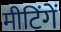
मीटिंगें